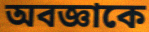
অবজ্ঞাকে